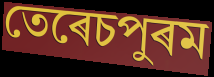
তেৰেচপুৰম